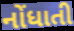
નોંધાતી